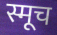
स्मूच